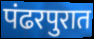
पंढरपुरात